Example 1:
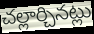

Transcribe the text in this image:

చల్లార్చినట్లు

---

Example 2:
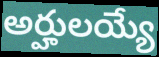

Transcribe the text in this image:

అర్హులయ్యే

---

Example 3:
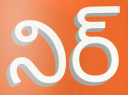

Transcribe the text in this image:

నిర్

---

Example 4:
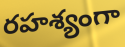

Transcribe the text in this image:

రహశ్యంగా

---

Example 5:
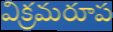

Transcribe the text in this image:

విక్రమరూప